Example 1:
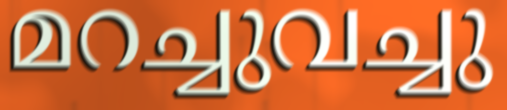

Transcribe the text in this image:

മറച്ചുവച്ചു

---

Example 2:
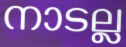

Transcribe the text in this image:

നാടല്ല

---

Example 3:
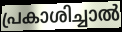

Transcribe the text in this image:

പ്രകാശിച്ചാൽ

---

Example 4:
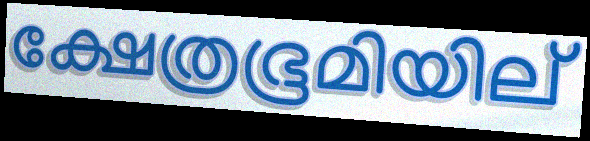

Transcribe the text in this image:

ക്ഷേത്രഭൂമിയില്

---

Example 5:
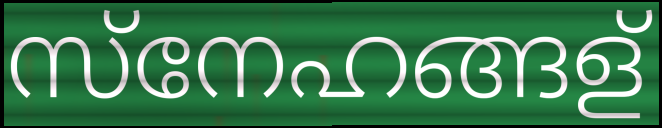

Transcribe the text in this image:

സ്നേഹങ്ങള്